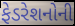
ફેડરેશનોની